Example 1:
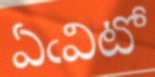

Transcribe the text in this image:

ఏఁవిటో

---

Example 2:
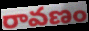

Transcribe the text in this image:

రావణం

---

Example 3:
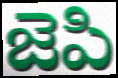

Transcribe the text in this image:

జెపి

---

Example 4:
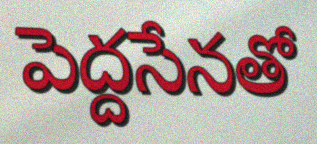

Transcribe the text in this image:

పెద్దసేనతో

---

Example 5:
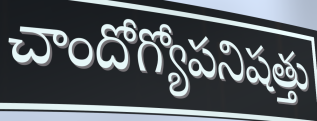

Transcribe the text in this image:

చాందోగ్యోపనిషత్తు